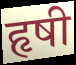
हृषी